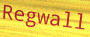
Regwall